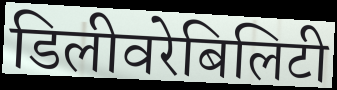
डिलीवरेबिलिटी